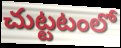
చుట్టటంలో